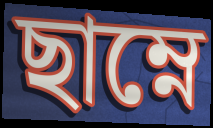
ছাম্নে